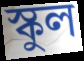
স্কুল